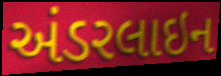
અંડરલાઇન